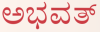
ಅಭವತ್